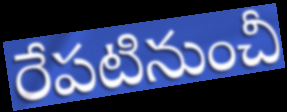
రేపటినుంచీ